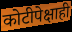
कोटीपेक्षाही